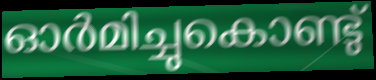
ഓർമിച്ചുകൊണ്ടു്